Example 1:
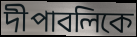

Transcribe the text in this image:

দীপাবলিকে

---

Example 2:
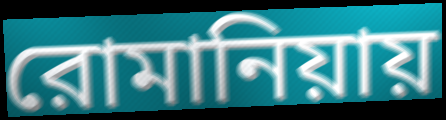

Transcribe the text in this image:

রোমানিয়ায়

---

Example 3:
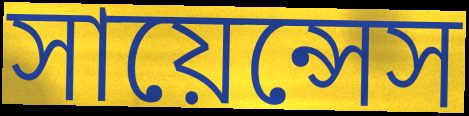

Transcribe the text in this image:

সায়েন্সেস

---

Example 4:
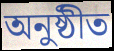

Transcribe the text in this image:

অনুষ্ঠীত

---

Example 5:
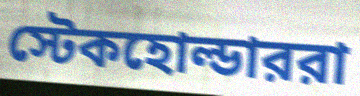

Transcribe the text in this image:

স্টেকহোল্ডাররা